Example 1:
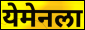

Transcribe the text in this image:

येमेनला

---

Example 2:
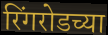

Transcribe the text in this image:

रिंगरोडच्या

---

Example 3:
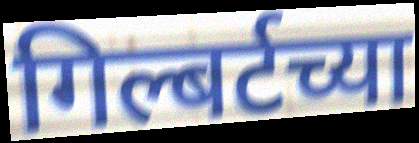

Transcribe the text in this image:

गिल्बर्टच्या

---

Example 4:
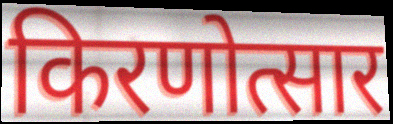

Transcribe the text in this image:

किरणोत्सार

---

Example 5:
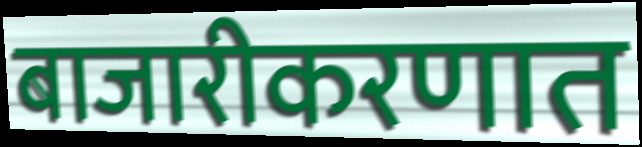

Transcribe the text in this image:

बाजारीकरणात